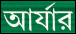
আর্যার